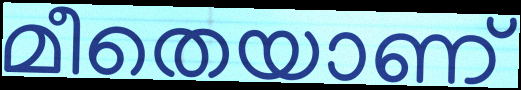
മീതെയാണ്